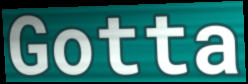
Gotta